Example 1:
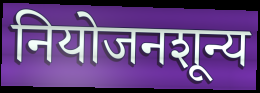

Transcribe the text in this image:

नियोजनशून्य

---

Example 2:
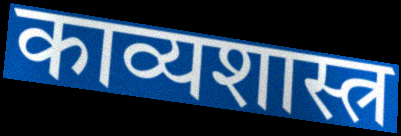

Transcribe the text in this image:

काव्यशास्त्र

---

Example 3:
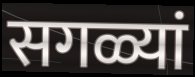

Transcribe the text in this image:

सगळ्यां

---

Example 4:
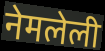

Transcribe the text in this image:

नेमलेली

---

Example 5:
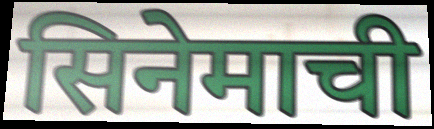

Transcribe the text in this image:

सिनेमाची